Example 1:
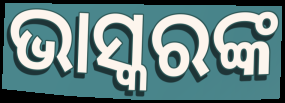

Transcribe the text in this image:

ଭାସ୍କରଙ୍କ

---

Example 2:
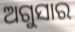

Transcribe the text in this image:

ଅଗୁସାର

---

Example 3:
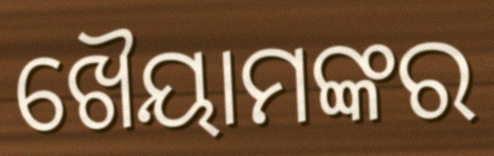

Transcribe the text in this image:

ଖୈୟାମଙ୍କର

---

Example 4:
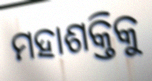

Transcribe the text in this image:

ମହାଶକ୍ତିକୁ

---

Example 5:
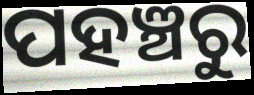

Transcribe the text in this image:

ପହଞ୍ଚରୁ